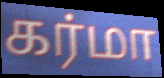
கர்மா